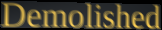
Demolished